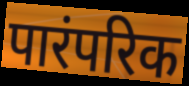
पारंपरिक